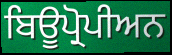
ਬਿਊਪ੍ਰੋਪੀਅਨ